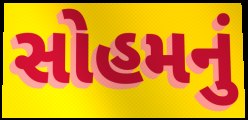
સોહમનું